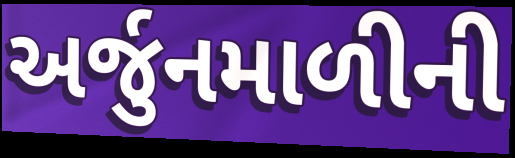
અર્જુનમાળીની